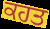
ਕਹਤ